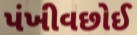
પંખીવછોઈ